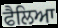
ਫੈਲਿਆ